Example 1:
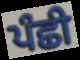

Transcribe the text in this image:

ਪੰਛੀ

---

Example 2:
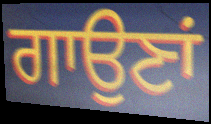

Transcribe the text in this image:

ਗਾਉਣਾਂ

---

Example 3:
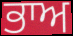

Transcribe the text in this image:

ਭਾਅ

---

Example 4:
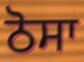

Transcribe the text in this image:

ਠੋਸਾ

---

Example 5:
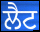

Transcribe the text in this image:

ਲੈਟ